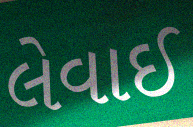
લેવાઈ